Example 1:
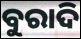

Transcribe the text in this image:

ବୁରାଦି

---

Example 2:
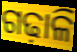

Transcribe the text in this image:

ଗଢ଼ାଳି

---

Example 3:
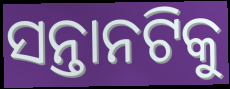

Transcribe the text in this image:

ସନ୍ତାନଟିକୁ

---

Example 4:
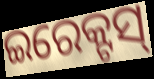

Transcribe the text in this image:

ଇରେକ୍ଟସ୍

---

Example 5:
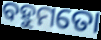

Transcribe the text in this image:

ବହୁମତୋ